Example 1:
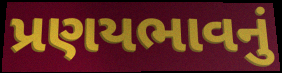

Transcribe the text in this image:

પ્રણયભાવનું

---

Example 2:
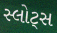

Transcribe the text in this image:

સ્લોટ્સ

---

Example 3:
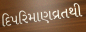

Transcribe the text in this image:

દિપરિમાણવ્રતથી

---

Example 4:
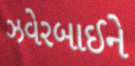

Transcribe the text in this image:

ઝવેરબાઈને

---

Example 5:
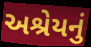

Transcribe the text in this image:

અશ્રેયનું